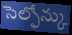
సెల్ఫోన్కు